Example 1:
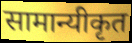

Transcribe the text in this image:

सामान्यीकृत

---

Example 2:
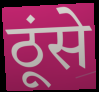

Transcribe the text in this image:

ठूंसे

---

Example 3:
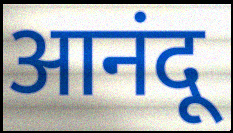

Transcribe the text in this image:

आनंदू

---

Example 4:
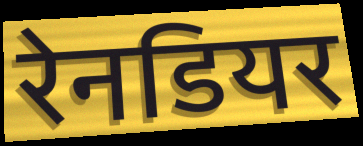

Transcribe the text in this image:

रेनडियर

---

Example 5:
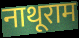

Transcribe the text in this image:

नाथूराम